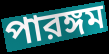
পারঙ্গম